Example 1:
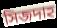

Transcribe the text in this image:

সিজদাহ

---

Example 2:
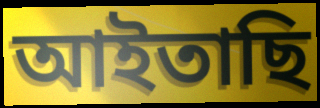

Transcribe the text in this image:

আইতাছি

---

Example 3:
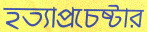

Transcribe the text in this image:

হত্যাপ্রচেষ্টার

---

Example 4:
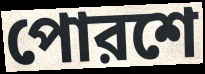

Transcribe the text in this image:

পোরশে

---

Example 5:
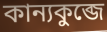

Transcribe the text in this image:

কান্যকুব্জে